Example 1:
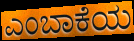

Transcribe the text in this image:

ಎಂಬಾಕೆಯ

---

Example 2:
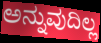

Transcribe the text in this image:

ಅನ್ನುವುದಿಲ್ಲ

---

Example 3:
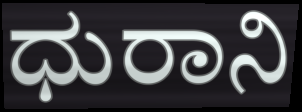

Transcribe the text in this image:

ಧುರಾನಿ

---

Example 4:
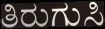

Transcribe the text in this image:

ತಿರುಗುಸಿ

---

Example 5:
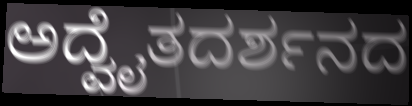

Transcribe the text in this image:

ಅದ್ವೈತದರ್ಶನದ